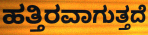
ಹತ್ತಿರವಾಗುತ್ತದೆ